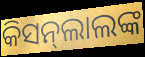
କିସନ୍‌ଲାଲଙ୍କ